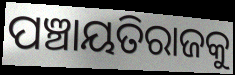
ପଞ୍ଚାୟତିରାଜକୁ